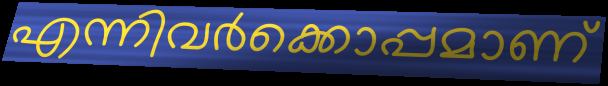
എന്നിവർക്കൊപ്പമാണ്